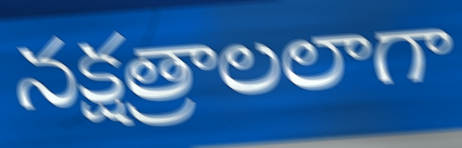
నక్షత్రాలలాగా